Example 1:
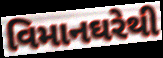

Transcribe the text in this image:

વિમાનઘરેથી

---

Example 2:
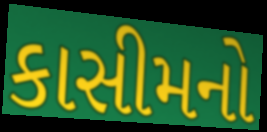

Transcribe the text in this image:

કાસીમનો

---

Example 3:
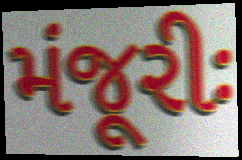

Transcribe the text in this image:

મંજૂરીઃ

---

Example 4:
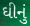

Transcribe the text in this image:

ઘીનું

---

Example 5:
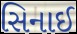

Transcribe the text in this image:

સિનાઈ